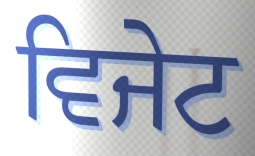
ਵਿਜੇਟ